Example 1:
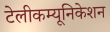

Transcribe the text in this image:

टेलीकम्यूनिकेशन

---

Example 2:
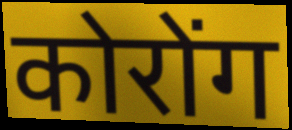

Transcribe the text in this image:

कोरोंग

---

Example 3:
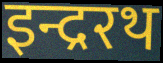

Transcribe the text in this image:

इन्द्ररथ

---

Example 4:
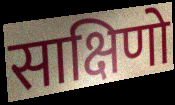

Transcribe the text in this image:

साक्षिणो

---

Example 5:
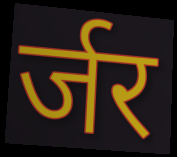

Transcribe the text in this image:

र्जर